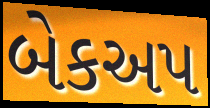
બેકઅપ